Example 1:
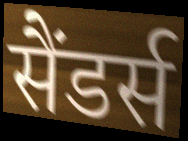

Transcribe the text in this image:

सैंडर्स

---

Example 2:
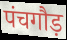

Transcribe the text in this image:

पंचगौड़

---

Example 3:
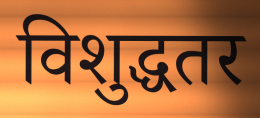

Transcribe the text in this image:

विशुद्धतर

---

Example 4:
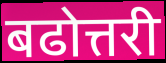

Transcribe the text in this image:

बढोत्तरी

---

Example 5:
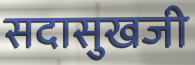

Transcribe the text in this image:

सदासुखजी